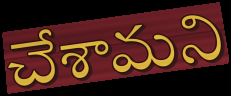
చేశామని